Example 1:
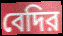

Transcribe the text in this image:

বেদির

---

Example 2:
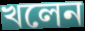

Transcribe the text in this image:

খলেন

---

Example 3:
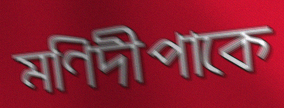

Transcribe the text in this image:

মণিদীপাকে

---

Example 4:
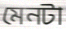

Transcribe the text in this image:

মেনটা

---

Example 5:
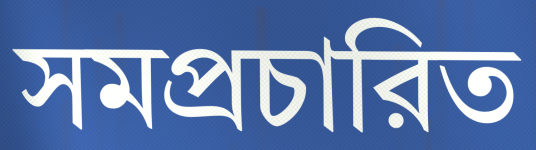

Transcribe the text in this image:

সমপ্রচারিত